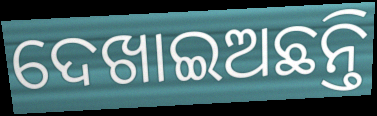
ଦେଖାଇଅଛନ୍ତି